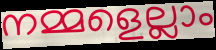
നമ്മളെല്ലാം